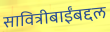
सावित्रीबाईंबद्दल